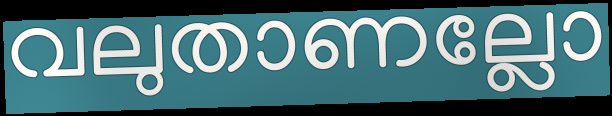
വലുതാണല്ലോ